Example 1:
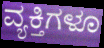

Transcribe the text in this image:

ವ್ಯಕ್ತಿಗಳೂ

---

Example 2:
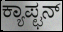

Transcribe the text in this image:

ಕ್ಯಾಪ್ಟನ್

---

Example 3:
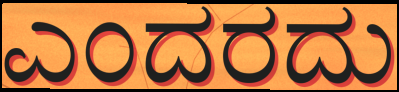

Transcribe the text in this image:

ಎಂದರದು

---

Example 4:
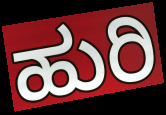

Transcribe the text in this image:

ಹುರಿ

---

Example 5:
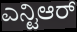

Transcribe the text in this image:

ಎನ್ಟಿಆರ್